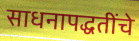
साधनापद्धतींचे